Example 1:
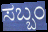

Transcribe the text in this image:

ಸಬ್ಬಂ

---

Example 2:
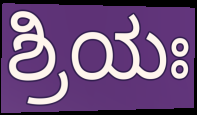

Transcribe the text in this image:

ಶ್ರಿಯಃ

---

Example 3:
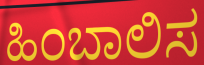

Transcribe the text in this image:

ಹಿಂಬಾಲಿಸ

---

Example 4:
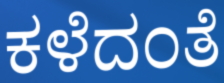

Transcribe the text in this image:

ಕಳೆದಂತೆ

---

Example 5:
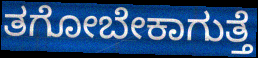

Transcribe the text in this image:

ತಗೋಬೇಕಾಗುತ್ತೆ